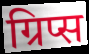
ग्रिप्स